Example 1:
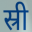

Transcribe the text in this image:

स्री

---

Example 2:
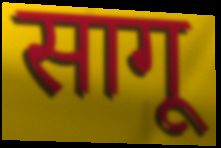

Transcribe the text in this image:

सागू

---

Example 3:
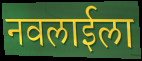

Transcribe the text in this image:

नवलाईला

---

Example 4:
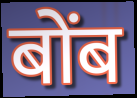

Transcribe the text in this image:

बोंब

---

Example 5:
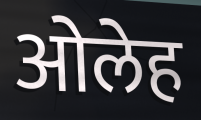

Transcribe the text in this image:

ओलेह